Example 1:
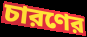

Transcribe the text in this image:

চারণের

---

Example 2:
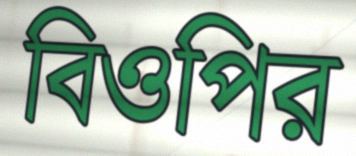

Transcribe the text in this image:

বিওপির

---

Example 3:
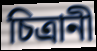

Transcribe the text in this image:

চিত্রানী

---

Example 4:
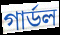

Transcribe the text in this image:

গার্ডল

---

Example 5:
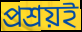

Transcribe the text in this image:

প্রশ্রয়ই